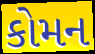
કોમન